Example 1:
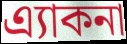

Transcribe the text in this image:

এ্যাকনা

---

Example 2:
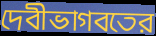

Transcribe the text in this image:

দেবীভাগবতের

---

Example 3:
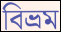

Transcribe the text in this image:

বিভ্রম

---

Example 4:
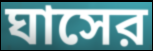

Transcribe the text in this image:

ঘাসের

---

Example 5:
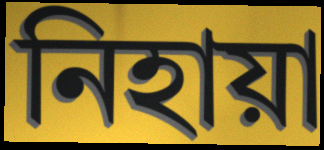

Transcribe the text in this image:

নিহায়া